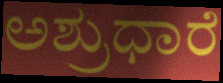
ಅಶ್ರುಧಾರೆ